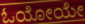
ಓಯೋಯೇ